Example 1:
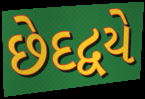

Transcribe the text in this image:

છેદદ્વયે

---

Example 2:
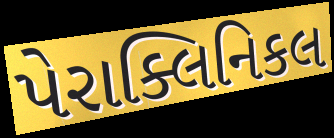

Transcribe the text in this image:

પેરાક્લિનિકલ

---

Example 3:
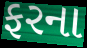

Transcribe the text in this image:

ફરના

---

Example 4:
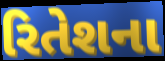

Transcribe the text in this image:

રિતેશના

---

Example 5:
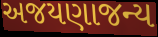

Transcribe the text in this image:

અજયણાજન્ય